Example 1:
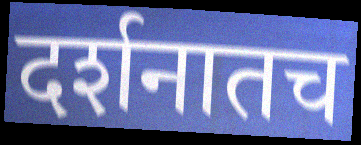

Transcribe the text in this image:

दर्शनातच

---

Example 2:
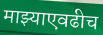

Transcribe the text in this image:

माझ्याएवढीच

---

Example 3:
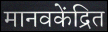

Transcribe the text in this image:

मानवकेंद्रित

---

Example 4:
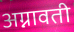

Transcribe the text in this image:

अग्नावती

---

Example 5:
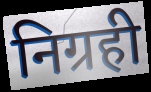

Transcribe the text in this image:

निग्रही